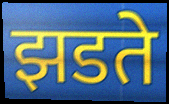
झडते